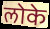
लोके